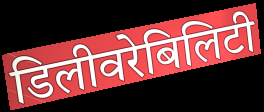
डिलीवरेबिलिटी